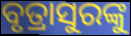
ବୃତ୍ରାସୁରଙ୍କୁ